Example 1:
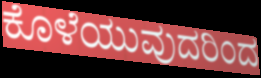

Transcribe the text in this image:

ಕೊಳೆಯುವುದರಿಂದ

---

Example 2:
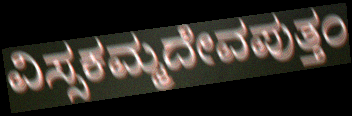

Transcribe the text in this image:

ವಿಸ್ಸಕಮ್ಮದೇವಪುತ್ತಂ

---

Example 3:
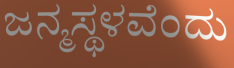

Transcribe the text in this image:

ಜನ್ಮಸ್ಥಳವೆಂದು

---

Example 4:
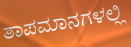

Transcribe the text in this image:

ತಾಪಮಾನಗಳಲ್ಲಿ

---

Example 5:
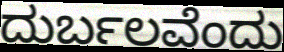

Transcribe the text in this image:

ದುರ್ಬಲವೆಂದು